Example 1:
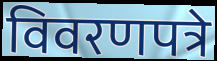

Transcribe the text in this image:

विवरणपत्रे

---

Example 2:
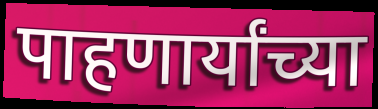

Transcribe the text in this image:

पाहणार्यांच्या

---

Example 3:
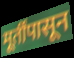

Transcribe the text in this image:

मूर्तींपासून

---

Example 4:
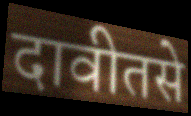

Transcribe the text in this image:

दावीतसे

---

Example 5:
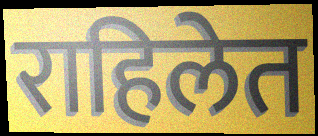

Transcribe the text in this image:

राहिलेत